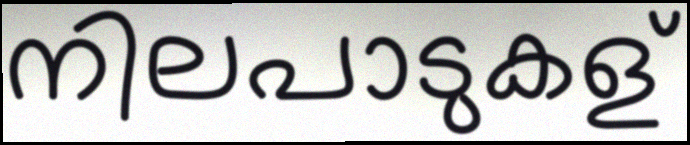
നിലപാടുകള്